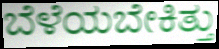
ಬೆಳೆಯಬೇಕಿತ್ತು